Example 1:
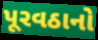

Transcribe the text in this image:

પૂરવઠાનો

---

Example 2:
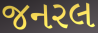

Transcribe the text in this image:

જનરલ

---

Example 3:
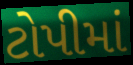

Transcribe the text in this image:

ટોપીમાં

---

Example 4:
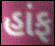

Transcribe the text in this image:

હાંફ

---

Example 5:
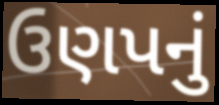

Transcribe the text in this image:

ઉણપનું